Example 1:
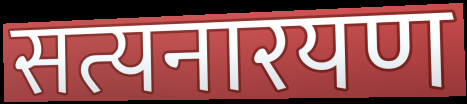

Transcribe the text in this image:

सत्यनारयण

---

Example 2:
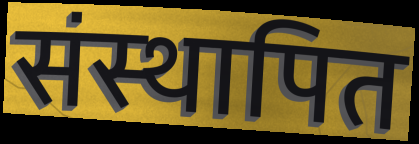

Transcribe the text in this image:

संस्थापित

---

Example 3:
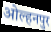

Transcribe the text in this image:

ओल्हनपुर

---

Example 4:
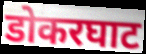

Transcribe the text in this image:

डोकरघाट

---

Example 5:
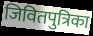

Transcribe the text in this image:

जिवितपुत्रिका